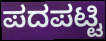
ಪದಪಟ್ಟಿ